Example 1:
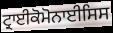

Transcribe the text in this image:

ਟ੍ਰਾਈਕੋਮੋਨਾਈਸਿਸ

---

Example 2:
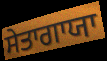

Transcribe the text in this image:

ਸੇਤਾਗਾਯਾ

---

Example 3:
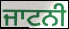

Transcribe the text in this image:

ਜਾਟਨੀ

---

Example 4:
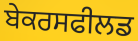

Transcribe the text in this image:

ਬੇਕਰਸਫੀਲਡ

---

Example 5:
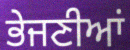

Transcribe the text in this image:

ਭੇਜਣੀਆਂ